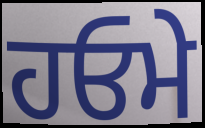
ਹਓਮੇ